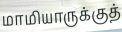
மாமியாருக்குத்